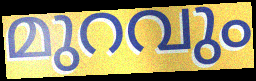
മുറവും